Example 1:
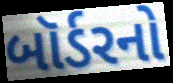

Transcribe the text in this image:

બૉર્ડરનો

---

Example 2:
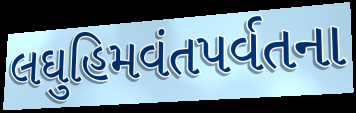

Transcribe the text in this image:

લઘુહિમવંતપર્વતના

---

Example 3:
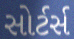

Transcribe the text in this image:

સોર્ટર્સ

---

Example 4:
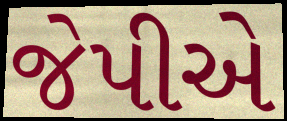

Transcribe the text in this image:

જેપીએ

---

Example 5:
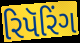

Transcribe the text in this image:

રિપૅરિંગ